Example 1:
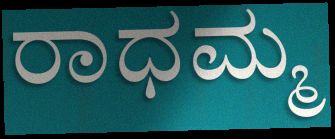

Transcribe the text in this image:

ರಾಧಮ್ಮ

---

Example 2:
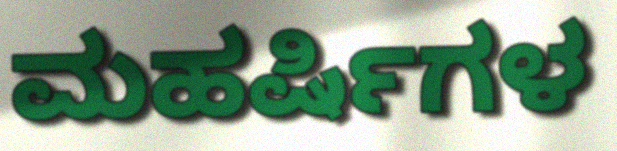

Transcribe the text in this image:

ಮಹರ್ಷಿಗಳ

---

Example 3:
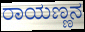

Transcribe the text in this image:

ರಾಯಣ್ಣನ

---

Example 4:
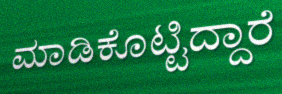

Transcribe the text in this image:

ಮಾಡಿಕೊಟ್ಟಿದ್ದಾರೆ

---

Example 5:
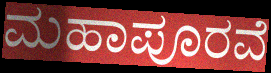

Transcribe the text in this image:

ಮಹಾಪೂರವೆ